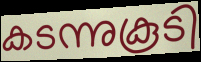
കടന്നുകൂടി